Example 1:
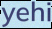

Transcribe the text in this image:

yehi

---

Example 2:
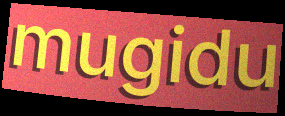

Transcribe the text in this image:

mugidu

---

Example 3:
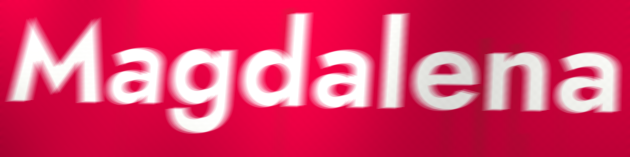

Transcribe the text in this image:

Magdalena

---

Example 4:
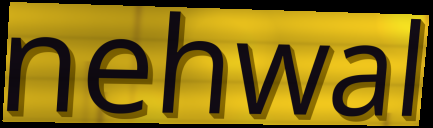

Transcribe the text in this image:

nehwal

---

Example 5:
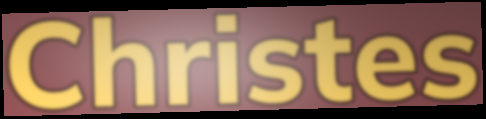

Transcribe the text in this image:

Christes